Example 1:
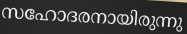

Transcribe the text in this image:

സഹോദരനായിരുന്നു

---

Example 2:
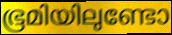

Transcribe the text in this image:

ഭൂമിയിലുണ്ടോ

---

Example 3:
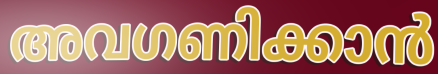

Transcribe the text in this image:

അവഗണിക്കാൻ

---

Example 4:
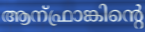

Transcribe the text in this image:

ആന്ഫ്രാങ്കിന്റെ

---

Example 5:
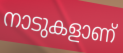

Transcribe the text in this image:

നാടുകളാണ്